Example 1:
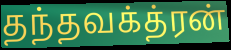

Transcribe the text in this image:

தந்தவக்த்ரன்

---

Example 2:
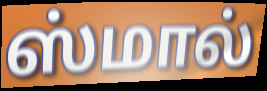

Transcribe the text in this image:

ஸ்மால்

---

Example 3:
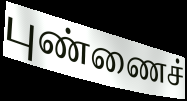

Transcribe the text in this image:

புண்ணைச்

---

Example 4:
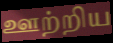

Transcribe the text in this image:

ஊற்றிய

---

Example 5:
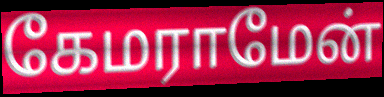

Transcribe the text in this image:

கேமராமேன்